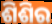
ଶିଶିର